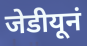
जेडीयूनं